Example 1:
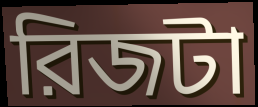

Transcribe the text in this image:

রিজটা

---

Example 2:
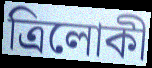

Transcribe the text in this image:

ত্রিলোকী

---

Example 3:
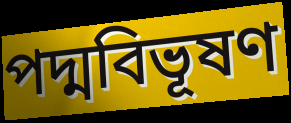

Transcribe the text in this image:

পদ্মবিভূষণ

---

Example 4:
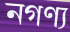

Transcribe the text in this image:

নগণ্য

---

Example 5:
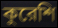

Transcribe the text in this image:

কুরেশি